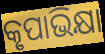
କୃପାଭିକ୍ଷା